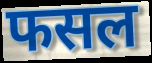
फसल